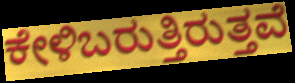
ಕೇಳಿಬರುತ್ತಿರುತ್ತವೆ